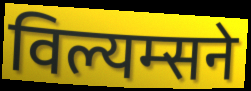
विल्यम्सने